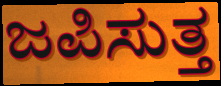
ಜಪಿಸುತ್ತ